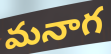
మనాగ